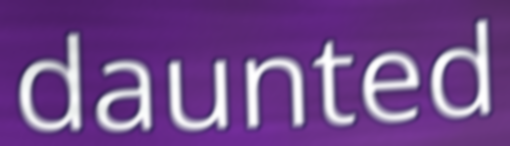
daunted